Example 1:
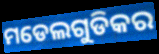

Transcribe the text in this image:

ମଡେଲଗୁଡିକର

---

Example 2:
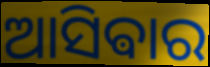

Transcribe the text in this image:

ଆସିଵାର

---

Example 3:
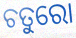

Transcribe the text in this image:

ଚତୁରୋ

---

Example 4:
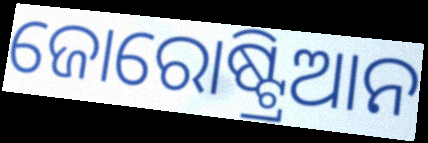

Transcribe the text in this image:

ଜୋରୋଷ୍ଟ୍ରିଆନ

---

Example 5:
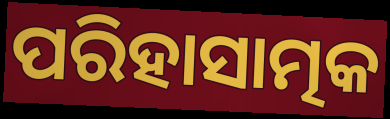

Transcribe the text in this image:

ପରିହାସାତ୍ମକ